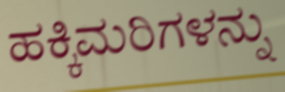
ಹಕ್ಕಿಮರಿಗಳನ್ನು